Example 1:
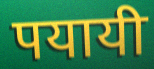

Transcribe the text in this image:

पयायी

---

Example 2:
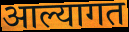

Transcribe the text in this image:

आल्यागत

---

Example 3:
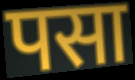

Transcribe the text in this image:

पसा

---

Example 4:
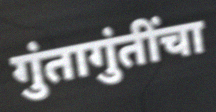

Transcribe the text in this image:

गुंतागुंतींचा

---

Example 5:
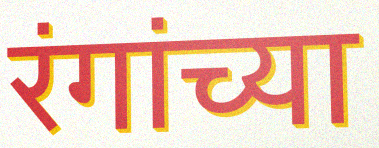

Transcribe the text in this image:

रंगांच्या